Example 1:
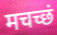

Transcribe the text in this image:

मचच्छं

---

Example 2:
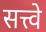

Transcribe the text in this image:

सत्त्वे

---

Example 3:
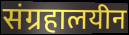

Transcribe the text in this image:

संग्रहालयीन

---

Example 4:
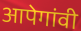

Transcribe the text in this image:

आपेगांवी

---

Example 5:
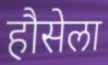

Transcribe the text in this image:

हौसेला